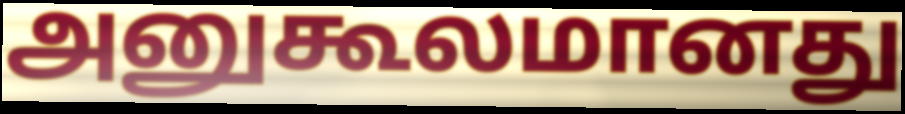
அனுகூலமானது